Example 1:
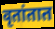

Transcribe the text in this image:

वृतांतात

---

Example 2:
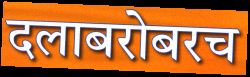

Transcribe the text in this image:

दलाबरोबरच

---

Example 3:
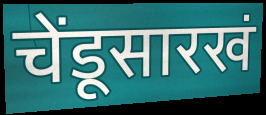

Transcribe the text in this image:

चेंडूसारखं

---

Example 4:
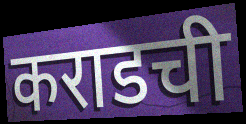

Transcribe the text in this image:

कराडची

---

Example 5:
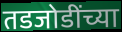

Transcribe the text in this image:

तडजोडींच्या